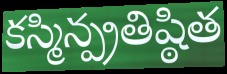
కస్మిన్ప్రతిష్ఠిత